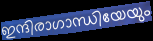
ഇന്ദിരാഗാന്ധിയേയും